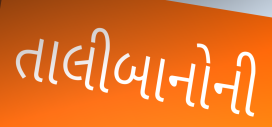
તાલીબાનોની